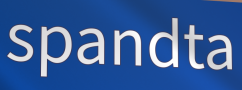
spandta